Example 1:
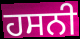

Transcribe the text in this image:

ਹਸਨੀ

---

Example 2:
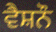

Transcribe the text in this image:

ਵੈਸ਼ਨੌ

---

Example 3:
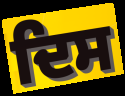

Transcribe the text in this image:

ਦਿਸ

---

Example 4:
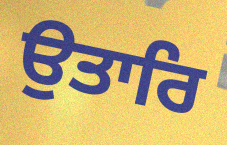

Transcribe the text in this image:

ਉਤਾਰਿ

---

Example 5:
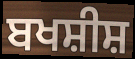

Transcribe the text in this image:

ਬਖਸ਼ੀਸ਼